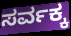
ಸರ್ವಕ್ಕ